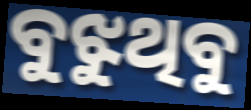
ବୁଝୁଥିବୁ